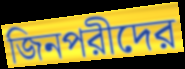
জিনপরীদের